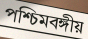
পশ্চিমবঙ্গীয়